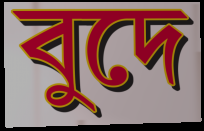
বুদে